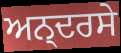
ਅਨ੍ਦਰਸੇ